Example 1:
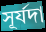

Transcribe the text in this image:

সূর্যদা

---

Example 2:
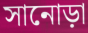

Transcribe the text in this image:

সানোড়া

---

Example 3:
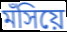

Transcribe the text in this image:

মঁসিয়ে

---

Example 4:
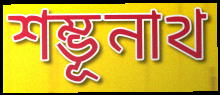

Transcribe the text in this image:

শম্ভূনাথ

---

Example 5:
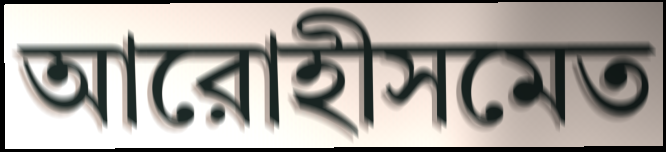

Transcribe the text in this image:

আরোহীসমেত